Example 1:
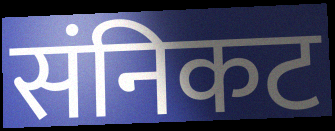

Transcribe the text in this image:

संनिकट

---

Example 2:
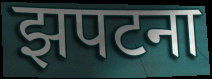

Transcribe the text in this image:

झपटना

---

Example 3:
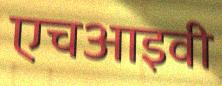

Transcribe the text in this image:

एचआइवी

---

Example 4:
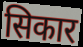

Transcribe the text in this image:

सिकार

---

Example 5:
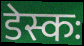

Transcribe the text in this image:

डेस्कः